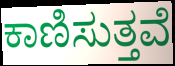
ಕಾಣಿಸುತ್ತವೆ